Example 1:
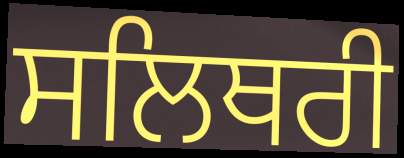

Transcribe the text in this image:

ਸਲਿਥਰੀ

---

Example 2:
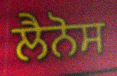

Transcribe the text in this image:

ਲੈਨੋਸ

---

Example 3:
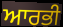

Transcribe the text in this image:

ਆਰਭੀ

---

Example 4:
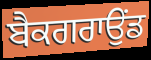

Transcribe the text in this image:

ਬੈਕਗਰਾਉਂਡ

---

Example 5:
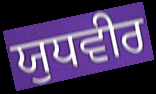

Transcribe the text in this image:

ਯੁਧਵੀਰ